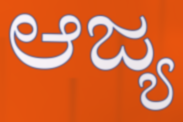
ಆಜ್ಯ